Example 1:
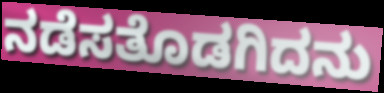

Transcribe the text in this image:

ನಡೆಸತೊಡಗಿದನು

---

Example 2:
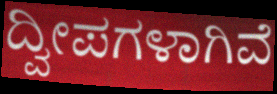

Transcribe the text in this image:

ದ್ವೀಪಗಳಾಗಿವೆ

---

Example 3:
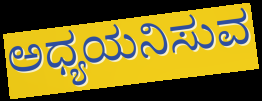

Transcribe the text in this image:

ಅಧ್ಯಯನಿಸುವ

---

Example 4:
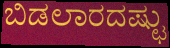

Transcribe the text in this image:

ಬಿಡಲಾರದಷ್ಟು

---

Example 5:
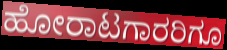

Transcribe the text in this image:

ಹೋರಾಟಗಾರರಿಗೂ